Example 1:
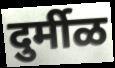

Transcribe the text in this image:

दुर्मीळ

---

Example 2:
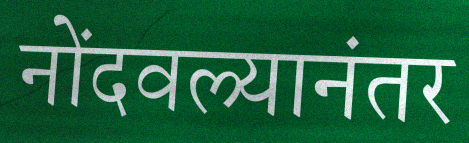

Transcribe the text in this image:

नोंदवल्यानंतर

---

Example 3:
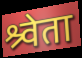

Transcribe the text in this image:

श्र्वेता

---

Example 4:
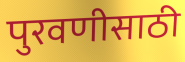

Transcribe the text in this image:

पुरवणीसाठी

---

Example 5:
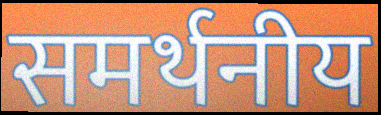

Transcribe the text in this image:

समर्थनीय